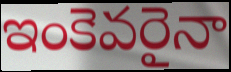
ఇంకెవరైనా